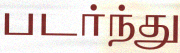
படர்ந்து